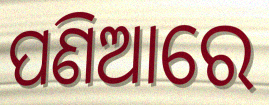
ପଣିଆରେ